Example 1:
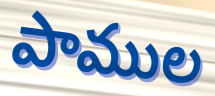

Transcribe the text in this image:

పాముల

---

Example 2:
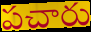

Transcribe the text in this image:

పచారు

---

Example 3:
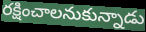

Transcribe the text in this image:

రక్షించాలనుకున్నాడు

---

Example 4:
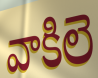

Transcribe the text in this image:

వాకిలె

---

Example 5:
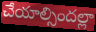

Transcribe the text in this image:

చేయాల్సిందల్లా